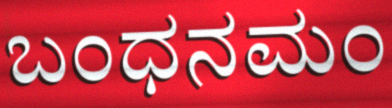
ಬಂಧನಮಂ